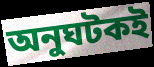
অনুঘটকই